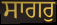
ਸਾਗਰੁ